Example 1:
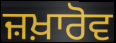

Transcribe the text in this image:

ਜ਼ਖ਼ਾਰੋਵ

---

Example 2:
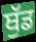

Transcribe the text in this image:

ਥੁੱਡ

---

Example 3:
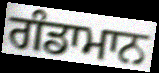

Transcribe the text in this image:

ਗੰਡਾਮਾਨ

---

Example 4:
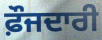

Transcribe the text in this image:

ਫ਼ੌਜਦਾਰੀ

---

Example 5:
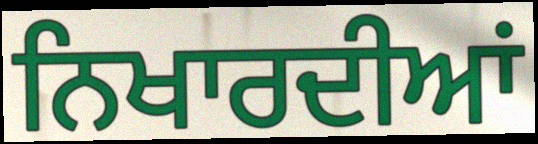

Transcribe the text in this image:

ਨਿਖਾਰਦੀਆਂ